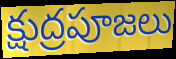
క్షుద్రపూజలు